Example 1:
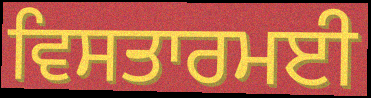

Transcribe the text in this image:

ਵਿਸਤਾਰਮਈ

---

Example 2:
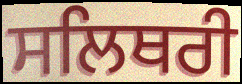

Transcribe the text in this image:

ਸਲਿਥਰੀ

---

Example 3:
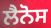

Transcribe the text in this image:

ਲੈਨੋਸ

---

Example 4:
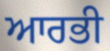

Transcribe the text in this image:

ਆਰਭੀ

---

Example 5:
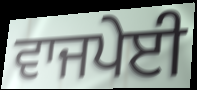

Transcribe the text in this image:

ਵਾਜਪੇਈ